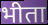
भीता